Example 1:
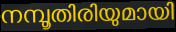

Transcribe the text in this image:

നമ്പൂതിരിയുമായി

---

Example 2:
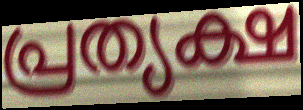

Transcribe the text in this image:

പ്രത്യക്ഷ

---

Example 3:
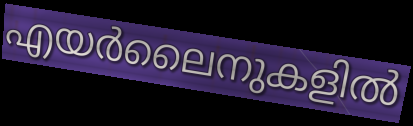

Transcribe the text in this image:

എയർലൈനുകളിൽ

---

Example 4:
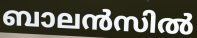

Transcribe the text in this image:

ബാലൻസിൽ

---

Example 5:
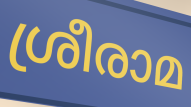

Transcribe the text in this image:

ശ്രീരാമ